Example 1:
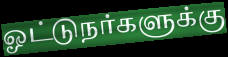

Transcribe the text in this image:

ஓட்டுநர்களுக்கு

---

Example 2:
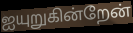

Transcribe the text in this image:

ஐயுறுகின்றேன்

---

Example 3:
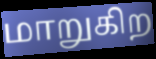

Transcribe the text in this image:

மாறுகிற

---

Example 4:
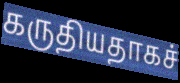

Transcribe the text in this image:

கருதியதாகச்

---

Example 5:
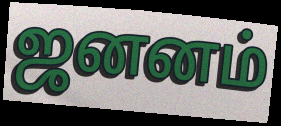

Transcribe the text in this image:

ஜனனம்